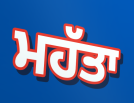
ਮਹੱਤਾ